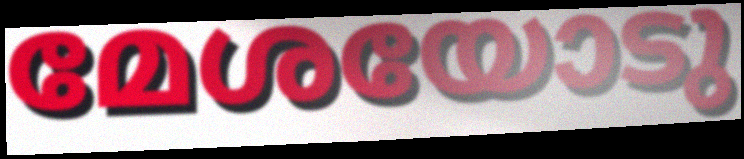
മേശയോടു